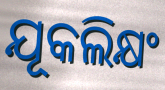
ଯୂକଲିକ୍ଷଂ